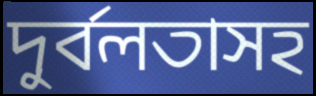
দুর্বলতাসহ